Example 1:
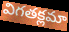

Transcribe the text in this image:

విగతక్లమా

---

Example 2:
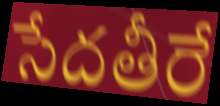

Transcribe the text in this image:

సేదతీరే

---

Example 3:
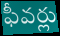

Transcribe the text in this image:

ఫీవర్లు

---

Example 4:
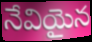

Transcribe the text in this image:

నేవియైన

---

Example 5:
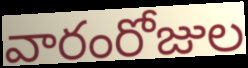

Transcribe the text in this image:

వారంరోజుల